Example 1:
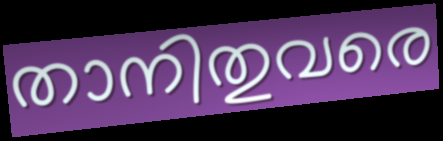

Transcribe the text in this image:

താനിതുവരെ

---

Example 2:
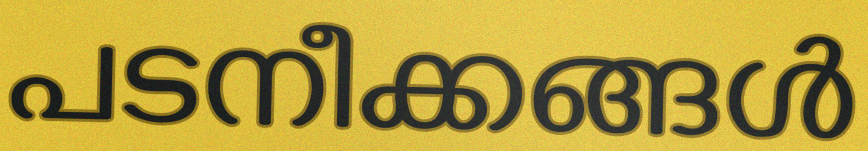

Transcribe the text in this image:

പടനീക്കങ്ങൾ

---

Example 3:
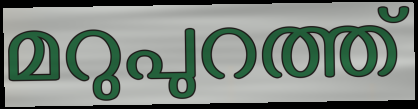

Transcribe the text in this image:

മറുപുറത്ത്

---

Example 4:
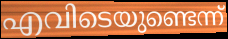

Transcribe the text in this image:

എവിടെയുണ്ടെന്ന്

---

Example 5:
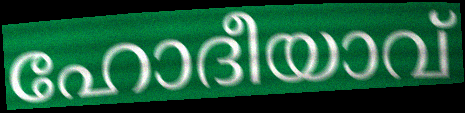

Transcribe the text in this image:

ഹോദീയാവ്